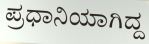
ಪ್ರಧಾನಿಯಾಗಿದ್ದ